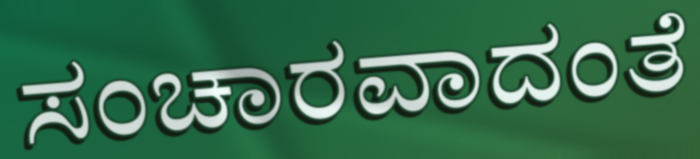
ಸಂಚಾರವಾದಂತೆ